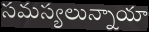
సమస్యలున్నాయా